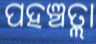
ପହଞ୍ଚତ୍ଲା